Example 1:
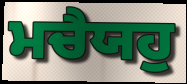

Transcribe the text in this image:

ਮਚੈਯਹੁ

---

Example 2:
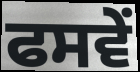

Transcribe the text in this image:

ਫਸਵੇਂ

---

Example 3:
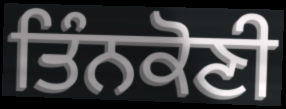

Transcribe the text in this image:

ਤਿੰਨਕੋਣੀ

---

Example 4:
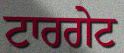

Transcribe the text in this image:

ਟਾਰਗੇਟ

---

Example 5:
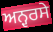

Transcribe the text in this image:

ਅਨ੍ਦਰਸੇ